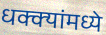
धक्क्यांमध्ये